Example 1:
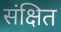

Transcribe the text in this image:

संक्षित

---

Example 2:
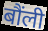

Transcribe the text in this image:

बौंली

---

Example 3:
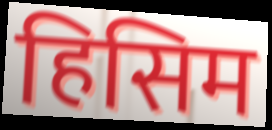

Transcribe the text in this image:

हिसिम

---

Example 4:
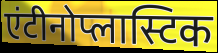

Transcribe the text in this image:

एंटीनोप्लास्टिक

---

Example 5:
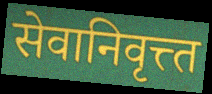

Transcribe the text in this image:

सेवानिवृत्त्त